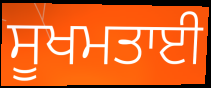
ਸੂਖਮਤਾਈ